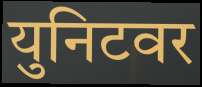
युनिटवर